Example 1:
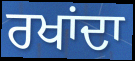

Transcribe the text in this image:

ਰਖਾਂਦਾ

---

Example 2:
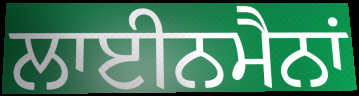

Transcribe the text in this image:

ਲਾਈਨਮੈਨਾਂ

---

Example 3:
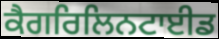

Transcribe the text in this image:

ਕੈਗਰਿਲਿਨਟਾਈਡ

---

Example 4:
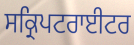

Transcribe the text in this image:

ਸਕ੍ਰਿਪਟਰਾਈਟਰ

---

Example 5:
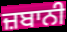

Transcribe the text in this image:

ਜ਼ਬਾਨੀ